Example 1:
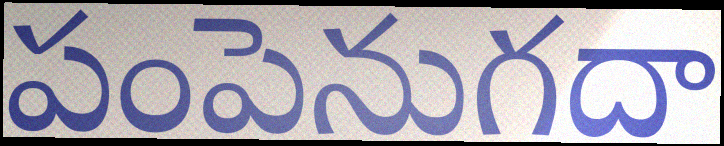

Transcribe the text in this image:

పంపెనుగదా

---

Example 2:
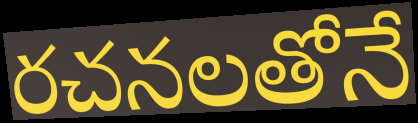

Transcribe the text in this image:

రచనలతోనే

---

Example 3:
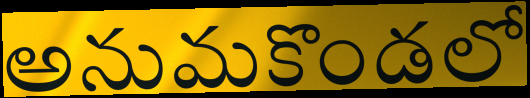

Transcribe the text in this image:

అనుమకొండలో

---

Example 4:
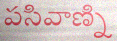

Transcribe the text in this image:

పసివాణ్ని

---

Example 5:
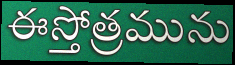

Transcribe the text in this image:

ఈస్తోత్రమును